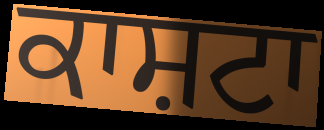
ਕਾਸ਼ਟਾ